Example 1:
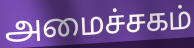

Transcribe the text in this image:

அமைச்சகம்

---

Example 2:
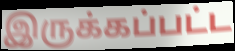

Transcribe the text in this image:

இருக்கப்பட்ட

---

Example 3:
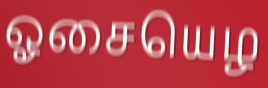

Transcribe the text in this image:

ஓசையெழ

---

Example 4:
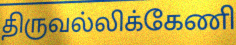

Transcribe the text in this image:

திருவல்லிக்கேணி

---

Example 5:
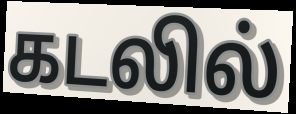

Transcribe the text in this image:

கடலில்